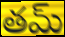
తమ్